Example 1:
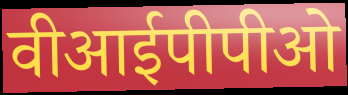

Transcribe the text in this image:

वीआईपीपीओ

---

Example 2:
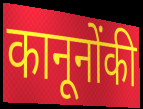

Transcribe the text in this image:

कानूनोंकी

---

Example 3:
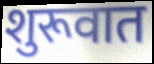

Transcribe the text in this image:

शुरूवात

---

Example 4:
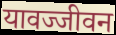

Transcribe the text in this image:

यावज्जीवन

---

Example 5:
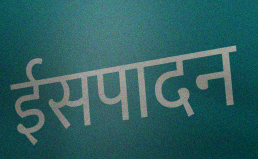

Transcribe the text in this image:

ईसपादन